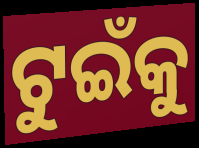
ଟୁଇଁକୁ